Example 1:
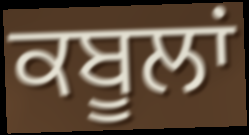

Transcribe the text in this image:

ਕਬੂਲਾਂ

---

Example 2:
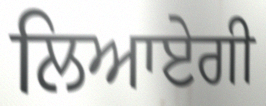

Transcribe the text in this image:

ਲਿਆਏਗੀ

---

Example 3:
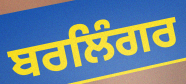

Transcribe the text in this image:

ਬਰਲਿੰਗਰ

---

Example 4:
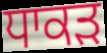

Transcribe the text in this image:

ਧਾਕੜ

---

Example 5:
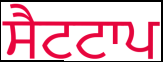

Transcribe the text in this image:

ਸੈਟਟਾਪ